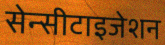
सेन्सीटाइजेशन